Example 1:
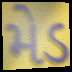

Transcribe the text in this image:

મેડ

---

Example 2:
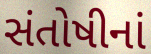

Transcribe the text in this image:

સંતોષીનાં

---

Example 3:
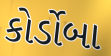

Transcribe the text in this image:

કોર્ડોબા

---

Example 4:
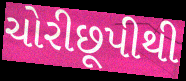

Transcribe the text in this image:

ચોરીછૂપીથી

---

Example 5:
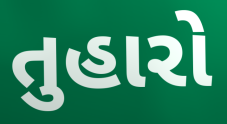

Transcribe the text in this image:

તુહારો